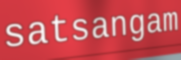
satsangam